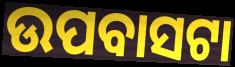
ଉପବାସଟା